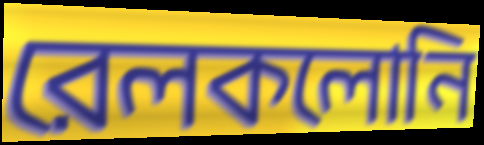
রেলকলোনি